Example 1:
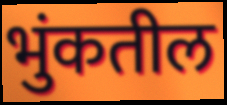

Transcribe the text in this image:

भुंकतील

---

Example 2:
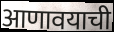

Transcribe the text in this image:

आणावयाची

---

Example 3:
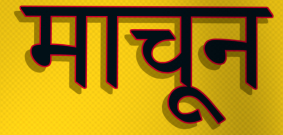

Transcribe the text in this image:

माचून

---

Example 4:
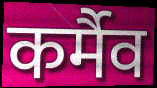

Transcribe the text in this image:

कर्मैव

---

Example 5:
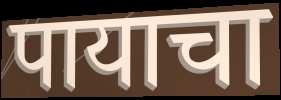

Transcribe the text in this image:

पायाचा